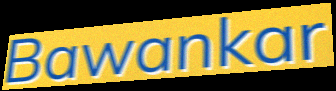
Bawankar